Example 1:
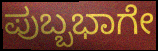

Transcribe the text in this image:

ಪುಬ್ಬಭಾಗೇ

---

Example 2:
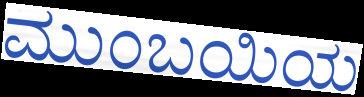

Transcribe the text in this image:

ಮುಂಬಯಿಯ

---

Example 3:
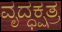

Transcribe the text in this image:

ವೃದ್ಧಕ್ಷತ್ರ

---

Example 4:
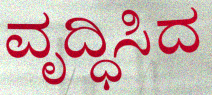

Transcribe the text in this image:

ವೃದ್ಧಿಸಿದ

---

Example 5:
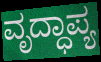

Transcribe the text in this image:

ವೃದ್ಧಾಪ್ಯ